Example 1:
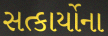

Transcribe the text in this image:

સત્કાર્યોના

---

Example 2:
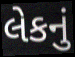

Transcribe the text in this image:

લેકનું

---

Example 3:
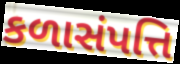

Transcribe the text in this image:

કળાસંપત્તિ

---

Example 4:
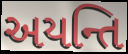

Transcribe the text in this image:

અયન્તિ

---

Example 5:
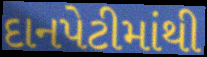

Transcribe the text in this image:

દાનપેટીમાંથી